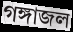
গঙ্গাজল